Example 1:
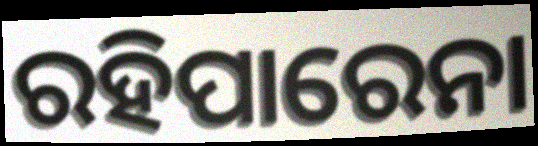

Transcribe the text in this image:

ରହିପାରେନା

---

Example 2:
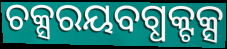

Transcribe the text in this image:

ଚକ୍ସରୟବଗ୍ଧକ୍ଟକ୍ସ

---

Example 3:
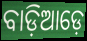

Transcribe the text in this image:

ବାଡ଼ିଆଡ଼େ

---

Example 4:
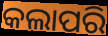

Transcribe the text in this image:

କଲାପରି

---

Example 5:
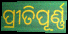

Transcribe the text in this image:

ପ୍ରୀତିପୂର୍ଣ୍ଣ